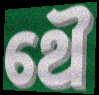
ଥୈ